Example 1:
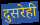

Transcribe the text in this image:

दुसरेही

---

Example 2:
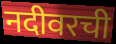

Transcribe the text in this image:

नदीवरची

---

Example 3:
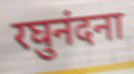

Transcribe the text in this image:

रघुनंदना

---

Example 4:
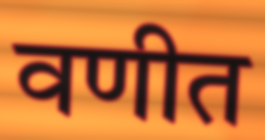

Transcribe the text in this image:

वणीत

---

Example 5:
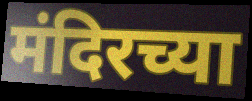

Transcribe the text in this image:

मंदिरच्या